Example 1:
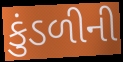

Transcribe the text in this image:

કુંડળીની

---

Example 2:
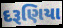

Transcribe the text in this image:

દરૂણિયા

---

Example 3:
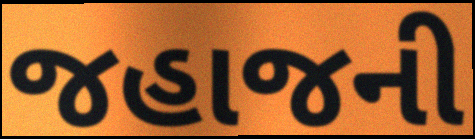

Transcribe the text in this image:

જહાજની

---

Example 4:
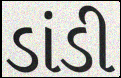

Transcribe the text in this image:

ડાંડી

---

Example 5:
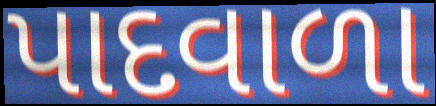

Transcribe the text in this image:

પાદવાળા